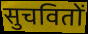
सुचवितों